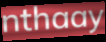
nthaay